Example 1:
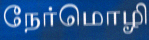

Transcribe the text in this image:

நேர்மொழி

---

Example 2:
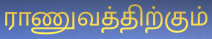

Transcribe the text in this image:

ராணுவத்திற்கும்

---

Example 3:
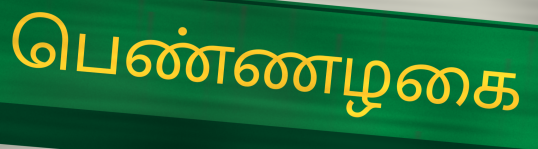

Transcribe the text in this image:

பெண்ணழகை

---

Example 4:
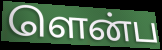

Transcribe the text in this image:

ளென்ப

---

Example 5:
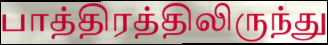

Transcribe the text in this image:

பாத்திரத்திலிருந்து